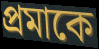
প্রমাকে